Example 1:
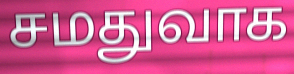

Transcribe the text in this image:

சமதுவாக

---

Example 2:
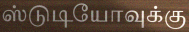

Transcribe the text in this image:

ஸ்டுடியோவுக்கு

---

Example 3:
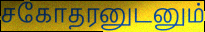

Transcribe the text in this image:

சகோதரனுடனும்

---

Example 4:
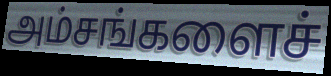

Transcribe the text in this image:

அம்சங்களைச்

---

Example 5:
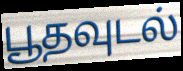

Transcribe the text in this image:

பூதவுடல்